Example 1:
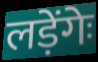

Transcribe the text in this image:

लड़ेंगेः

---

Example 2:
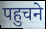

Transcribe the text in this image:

पहुचने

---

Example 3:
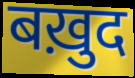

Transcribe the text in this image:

बख़ुद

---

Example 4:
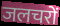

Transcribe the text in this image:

जलचरों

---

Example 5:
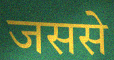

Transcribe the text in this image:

जससे